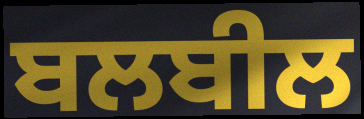
ਬਲਬੀਲ